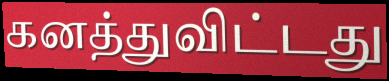
கனத்துவிட்டது